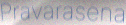
Pravarasena